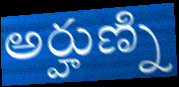
అర్హుణ్ని